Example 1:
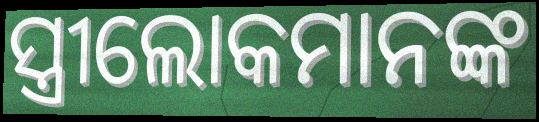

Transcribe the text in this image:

ସ୍ତ୍ରୀଲୋକମାନଙ୍କ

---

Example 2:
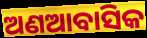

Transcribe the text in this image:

ଅଣଆବାସିକ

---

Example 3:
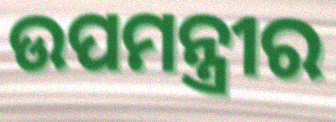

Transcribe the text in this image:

ଉପମନ୍ତ୍ରୀର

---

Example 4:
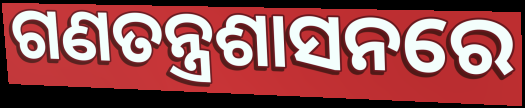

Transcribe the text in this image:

ଗଣତନ୍ତ୍ରଶାସନରେ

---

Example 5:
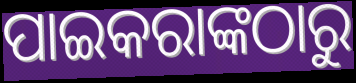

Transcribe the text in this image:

ପାଇକରାଙ୍କଠାରୁ